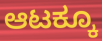
ಆಟಕ್ಕೂ